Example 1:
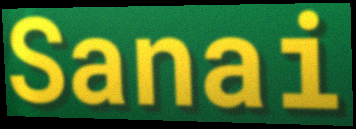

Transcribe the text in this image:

Sanai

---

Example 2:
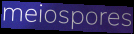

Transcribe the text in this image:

meiospores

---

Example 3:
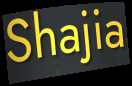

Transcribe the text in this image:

Shajia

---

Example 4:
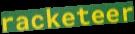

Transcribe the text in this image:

racketeer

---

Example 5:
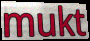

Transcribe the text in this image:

mukt